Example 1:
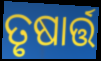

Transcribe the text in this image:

ତୃଷାର୍ତ୍ତ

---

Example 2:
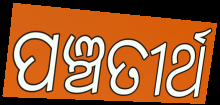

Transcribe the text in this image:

ପଞ୍ଚତୀର୍ଥ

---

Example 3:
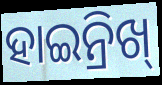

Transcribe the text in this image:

ହାଇନ୍ରିଖ୍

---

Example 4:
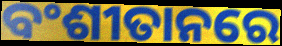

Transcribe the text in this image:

ବଂଶୀତାନରେ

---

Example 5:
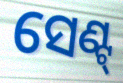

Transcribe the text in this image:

ସେଣ୍ଟ୍